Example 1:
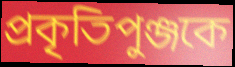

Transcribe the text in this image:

প্রকৃতিপুঞ্জকে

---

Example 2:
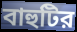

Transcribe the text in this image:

বাহুটির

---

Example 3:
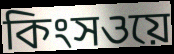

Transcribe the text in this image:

কিংসওয়ে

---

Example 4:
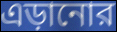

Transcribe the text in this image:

এড়ানোর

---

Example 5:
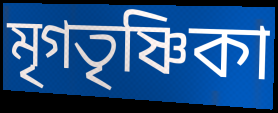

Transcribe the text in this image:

মৃগতৃষ্ণিকা